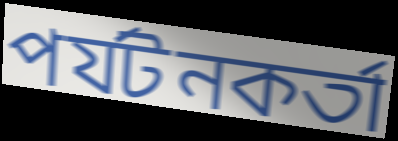
পর্যটনকর্তা